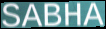
SABHA